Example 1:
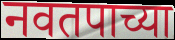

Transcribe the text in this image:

नवतपाच्या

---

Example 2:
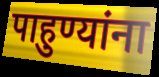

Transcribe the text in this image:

पाहुण्यांना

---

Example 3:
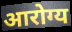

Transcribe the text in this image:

आरोग्य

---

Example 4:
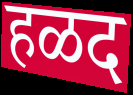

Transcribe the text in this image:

हळद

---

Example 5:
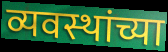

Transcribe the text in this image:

व्यवस्थांच्या